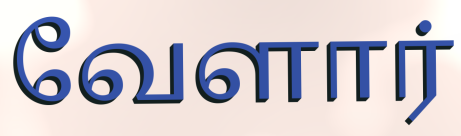
வேளார்